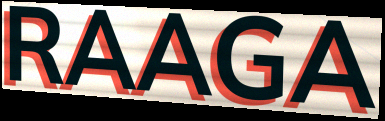
RAAGA